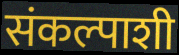
संकल्पाशी